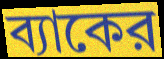
ব্যাকের